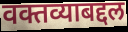
वक्तव्याबद्दल